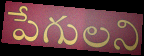
పేగులని